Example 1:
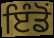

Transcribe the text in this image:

ਇੰਡੋਂ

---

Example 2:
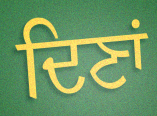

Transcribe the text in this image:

ਦਿਣਾਂ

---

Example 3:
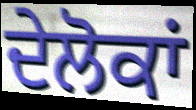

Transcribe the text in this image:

ਦੇਲੋਕਾਂ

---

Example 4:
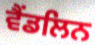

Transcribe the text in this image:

ਵੈਂਡਲਿਨ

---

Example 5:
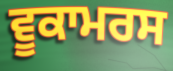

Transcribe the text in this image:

ਵੂਕਾਮਰਸ